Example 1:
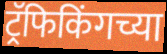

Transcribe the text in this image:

ट्रॅफिकिंगच्या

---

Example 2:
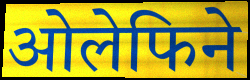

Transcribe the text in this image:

ओलेफिने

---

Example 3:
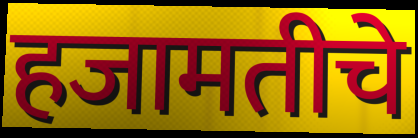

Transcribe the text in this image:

हजामतीचे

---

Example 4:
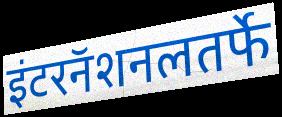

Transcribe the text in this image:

इंटरनॅशनलतर्फे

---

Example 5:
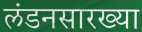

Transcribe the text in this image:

लंडनसारख्या